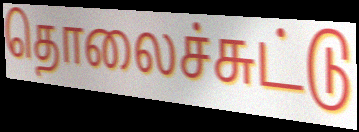
தொலைச்சுட்டு